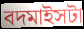
বদমাইসটা